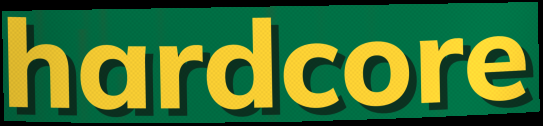
hardcore